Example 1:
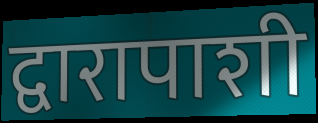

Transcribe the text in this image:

द्वारापाशी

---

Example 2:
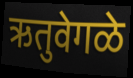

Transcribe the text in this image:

ऋतुवेगळे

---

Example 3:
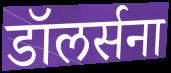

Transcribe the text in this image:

डॉलर्सना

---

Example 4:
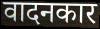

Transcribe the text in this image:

वादनकार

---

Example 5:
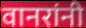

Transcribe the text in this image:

वानरांनी